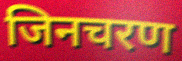
जिनचरण